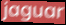
jaguar